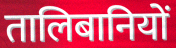
तालिबानियों